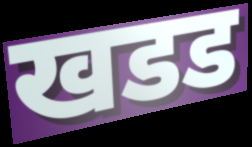
खडड